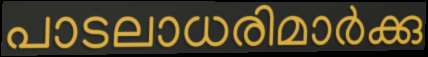
പാടലാധരിമാർക്കു